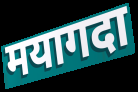
मयागदा